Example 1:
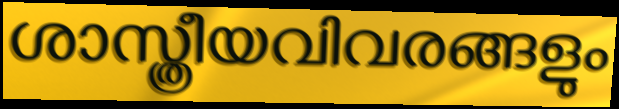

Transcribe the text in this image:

ശാസ്ത്രീയവിവരങ്ങളും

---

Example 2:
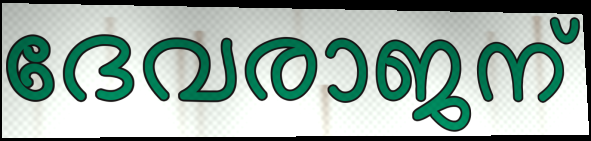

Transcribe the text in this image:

ദേവരാജന്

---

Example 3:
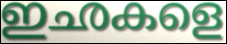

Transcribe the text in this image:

ഇഛകളെ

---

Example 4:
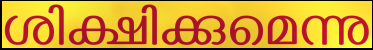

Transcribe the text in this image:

ശിക്ഷിക്കുമെന്നു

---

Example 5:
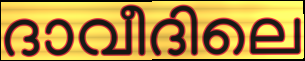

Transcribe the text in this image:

ദാവീദിലെ